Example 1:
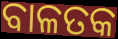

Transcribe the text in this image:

ବାଳତକ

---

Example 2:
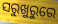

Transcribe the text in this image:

ସରୁଖୁରୁରେ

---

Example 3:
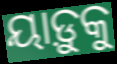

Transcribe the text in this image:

ୟାଡ଼ୁକୁ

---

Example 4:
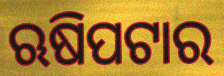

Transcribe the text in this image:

ଋଷିପଟାର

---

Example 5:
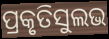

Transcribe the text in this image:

ପ୍ରକୃତିସୁଲଭ